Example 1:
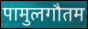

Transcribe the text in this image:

पामुलगौतम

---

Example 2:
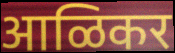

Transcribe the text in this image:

आळिकर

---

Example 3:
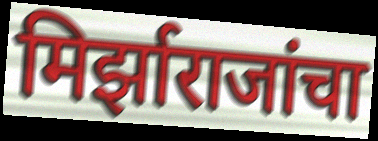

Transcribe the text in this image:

मिर्झाराजांचा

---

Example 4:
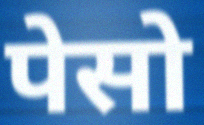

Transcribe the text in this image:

पेसो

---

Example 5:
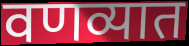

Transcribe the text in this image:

वणव्यात